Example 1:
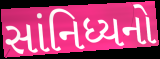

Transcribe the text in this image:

સાંનિધ્યનો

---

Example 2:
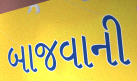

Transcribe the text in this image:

બાજવાની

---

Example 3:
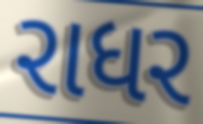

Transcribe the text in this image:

રાધર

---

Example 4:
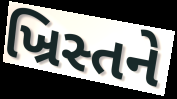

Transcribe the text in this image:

ખ્રિસ્તને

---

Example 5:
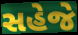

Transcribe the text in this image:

સહેજે